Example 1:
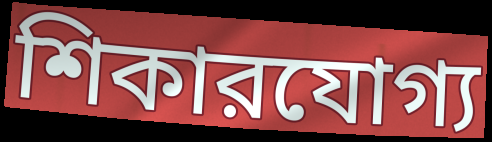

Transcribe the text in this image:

শিকারযোগ্য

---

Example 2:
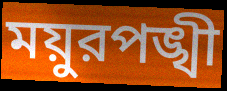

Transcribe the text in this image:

ময়ুরপঙ্খী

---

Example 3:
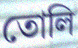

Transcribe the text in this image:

তোলি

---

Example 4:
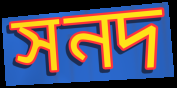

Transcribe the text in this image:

সনদ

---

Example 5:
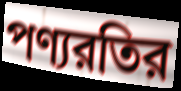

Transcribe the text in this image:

পণ্যরতির